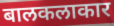
बालकलाकार